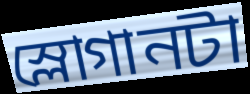
স্লোগানটা